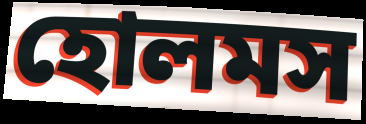
হোলমস